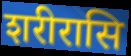
शरीरासि